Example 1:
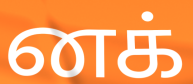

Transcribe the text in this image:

னக்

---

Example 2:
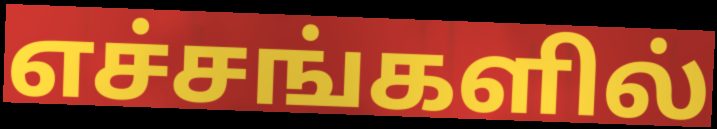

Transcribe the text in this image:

எச்சங்களில்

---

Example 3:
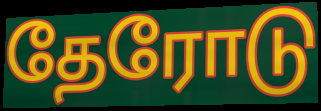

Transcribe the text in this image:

தேரோடு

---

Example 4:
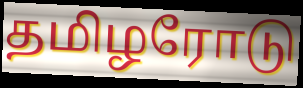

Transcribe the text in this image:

தமிழரோடு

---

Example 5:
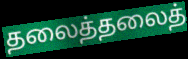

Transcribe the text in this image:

தலைத்தலைத்